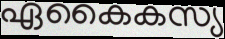
ഏകൈകസ്യ